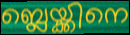
ബ്ലെയ്ക്കിനെ